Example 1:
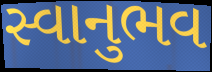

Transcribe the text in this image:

સ્વાનુભવ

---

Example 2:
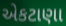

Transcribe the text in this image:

એકટાણા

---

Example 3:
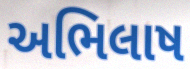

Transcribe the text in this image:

અભિલાષ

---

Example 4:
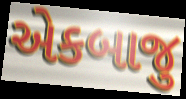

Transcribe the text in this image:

એકબાજુ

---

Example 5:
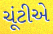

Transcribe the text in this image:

ચૂંટીએ